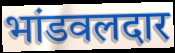
भांडवलदार